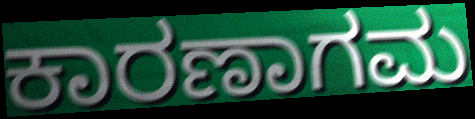
ಕಾರಣಾಗಮ